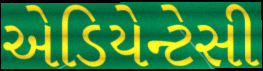
એડિયેન્ટેસી